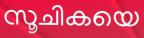
സൂചികയെ